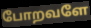
போறவளே